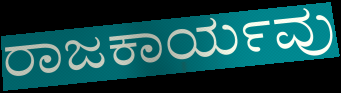
ರಾಜಕಾರ್ಯವು